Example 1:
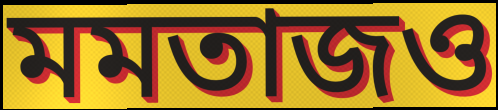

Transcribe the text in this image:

মমতাজও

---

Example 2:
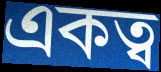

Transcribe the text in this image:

একত্ব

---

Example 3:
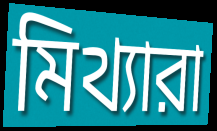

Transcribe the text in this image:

মিথ্যারা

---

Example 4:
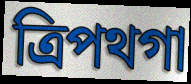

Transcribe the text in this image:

ত্রিপথগা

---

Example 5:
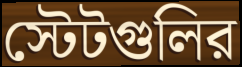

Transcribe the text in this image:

স্টেটগুলির